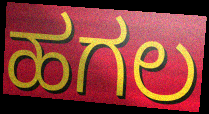
ಹಗಲ